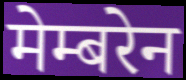
मेम्बरेन